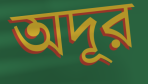
অদূর